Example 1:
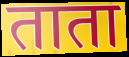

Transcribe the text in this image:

ताता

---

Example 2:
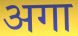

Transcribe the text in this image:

अगा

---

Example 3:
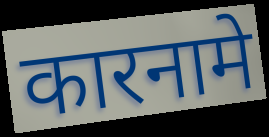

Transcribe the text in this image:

कारनामे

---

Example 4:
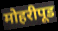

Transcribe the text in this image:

मोहरीपूड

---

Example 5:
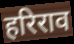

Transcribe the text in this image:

हरिराव